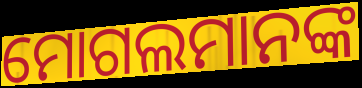
ମୋଗଲମାନଙ୍କ